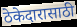
ठेकेदारासाठी